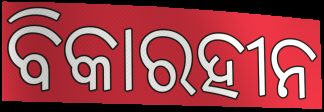
ବିକାରହୀନ